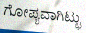
ಗೋಪ್ಯವಾಗಿಟ್ಟು